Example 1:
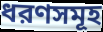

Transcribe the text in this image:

ধরণসমূহ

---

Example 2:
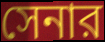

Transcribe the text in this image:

সেনার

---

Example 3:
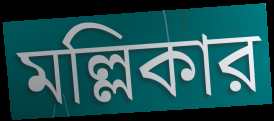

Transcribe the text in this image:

মল্লিকার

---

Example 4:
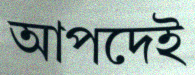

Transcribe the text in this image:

আপদেই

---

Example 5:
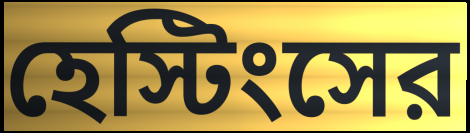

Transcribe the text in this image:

হেস্টিংসের